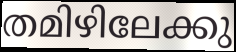
തമിഴിലേക്കു